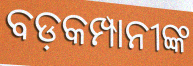
ବଡ଼କମ୍ପାନୀଙ୍କ